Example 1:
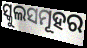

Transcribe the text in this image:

ସ୍କୁଲସମୂହର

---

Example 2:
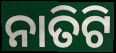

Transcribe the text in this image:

ନାତିଟି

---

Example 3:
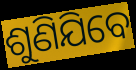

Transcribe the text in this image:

ଶୁଣିଯିବେ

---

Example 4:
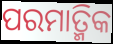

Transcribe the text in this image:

ପରମାତ୍ମିକ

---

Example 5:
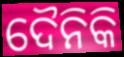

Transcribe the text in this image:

ଦୈନିକି